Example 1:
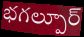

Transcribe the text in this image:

భగల్పూర్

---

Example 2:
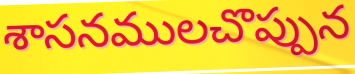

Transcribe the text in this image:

శాసనములచొప్పున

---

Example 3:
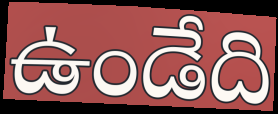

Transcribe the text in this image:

ఉండేది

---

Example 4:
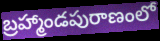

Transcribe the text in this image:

బ్రహ్మాండపురాణంలో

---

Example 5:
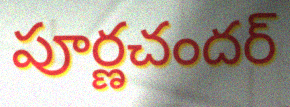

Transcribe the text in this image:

పూర్ణచందర్